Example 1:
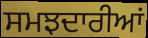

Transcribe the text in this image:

ਸਮਝਦਾਰੀਆਂ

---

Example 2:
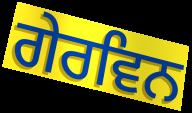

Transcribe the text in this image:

ਗੇਰਵਿਨ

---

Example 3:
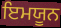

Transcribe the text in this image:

ਇਮਯੂਨ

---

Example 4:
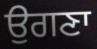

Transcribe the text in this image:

ਉਗਣਾ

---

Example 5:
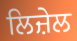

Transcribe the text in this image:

ਲਿਜ਼ੇਲ